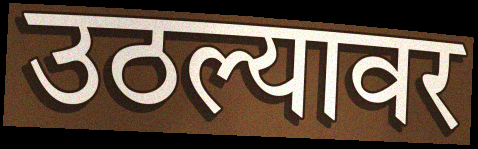
उठल्यावर